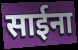
साईना